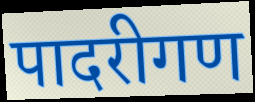
पादरीगण